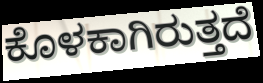
ಕೊಳಕಾಗಿರುತ್ತದೆ